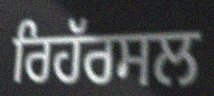
ਰਿਹੱਰਸਲ